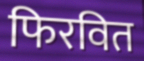
फिरवित